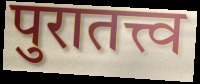
पुरातत्त्व